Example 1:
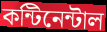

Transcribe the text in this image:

কন্টিনেন্টাল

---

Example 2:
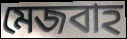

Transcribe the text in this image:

মেজবাহ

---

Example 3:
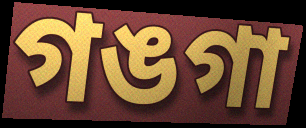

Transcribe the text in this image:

গঙগা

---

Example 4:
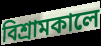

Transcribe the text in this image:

বিশ্রামকালে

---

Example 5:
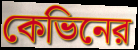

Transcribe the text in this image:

কেভিনের